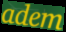
adem